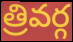
త్రివర్గ